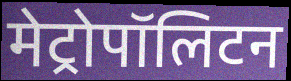
मेट्रोपॉलिटन